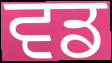
ਵਡ